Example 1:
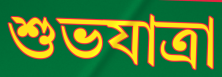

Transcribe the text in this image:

শুভযাত্রা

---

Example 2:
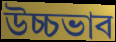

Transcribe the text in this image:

উচ্চভাব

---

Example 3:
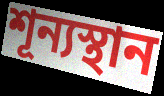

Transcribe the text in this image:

শূন্যস্থান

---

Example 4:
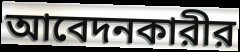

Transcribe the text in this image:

আবেদনকারীর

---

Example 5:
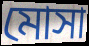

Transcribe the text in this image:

মোসা